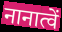
नानात्वें